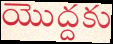
యొద్దకు